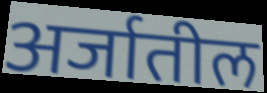
अर्जातील